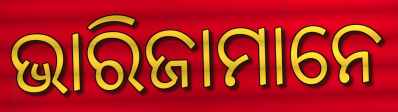
ଭାରିଜାମାନେ